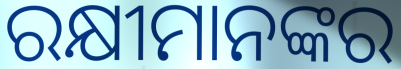
ରକ୍ଷୀମାନଙ୍କର